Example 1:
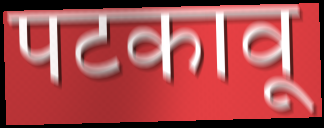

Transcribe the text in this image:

पटकावू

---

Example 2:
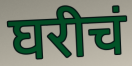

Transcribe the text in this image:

घरीचं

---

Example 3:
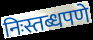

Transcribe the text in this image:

निःस्तब्धपणे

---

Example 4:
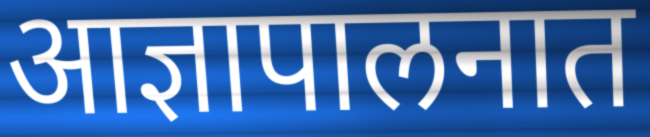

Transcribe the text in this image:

आज्ञापालनात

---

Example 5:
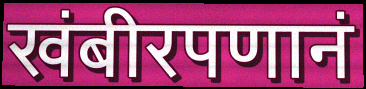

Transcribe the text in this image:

खंबीरपणानं